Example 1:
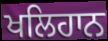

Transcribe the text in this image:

ਖਲਿਹਾਨ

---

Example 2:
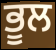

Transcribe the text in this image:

ਭੂਲ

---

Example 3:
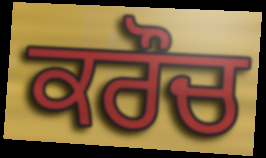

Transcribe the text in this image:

ਕਰੌਚ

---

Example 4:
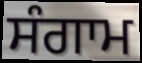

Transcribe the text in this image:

ਸੰਗਾਮ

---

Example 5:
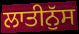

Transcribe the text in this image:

ਲਾਤੀਨੁੱਸ